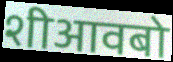
शीआवबो